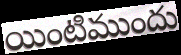
యింటిముందు